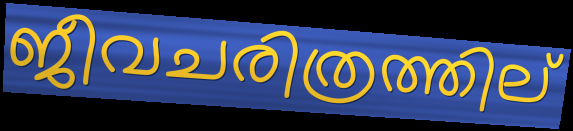
ജീവചരിത്രത്തില്